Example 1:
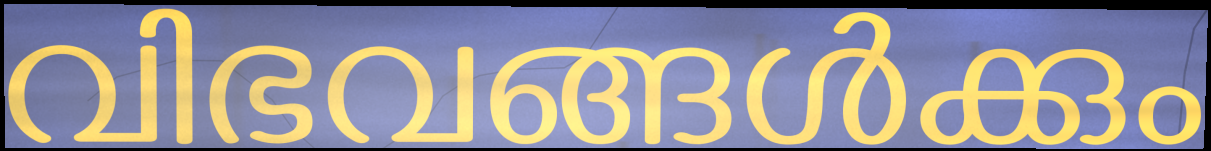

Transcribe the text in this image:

വിഭവങ്ങൾക്കും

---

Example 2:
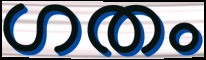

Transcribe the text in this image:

ഗതം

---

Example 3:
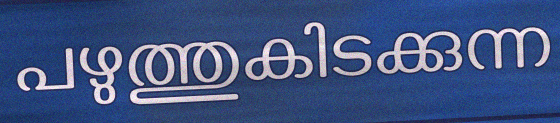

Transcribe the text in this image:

പഴുത്തുകിടക്കുന്ന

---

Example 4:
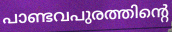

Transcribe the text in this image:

പാണ്ടവപുരത്തിന്റെ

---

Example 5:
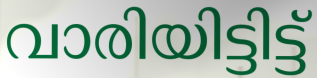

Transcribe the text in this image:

വാരിയിട്ടിട്ട്